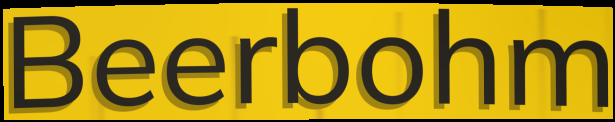
Beerbohm